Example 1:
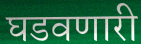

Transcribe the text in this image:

घडवणारी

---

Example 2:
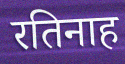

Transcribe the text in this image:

रतिनाह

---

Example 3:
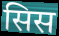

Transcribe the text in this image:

सिस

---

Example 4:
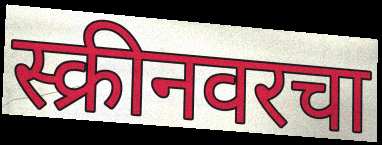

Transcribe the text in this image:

स्क्रीनवरचा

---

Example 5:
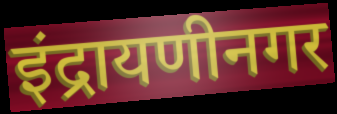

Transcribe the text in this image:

इंद्रायणीनगर